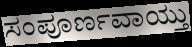
ಸಂಪೂರ್ಣವಾಯ್ತು